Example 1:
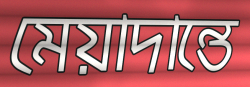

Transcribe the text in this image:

মেয়াদান্তে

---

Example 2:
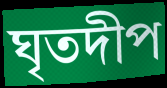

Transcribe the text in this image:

ঘৃতদীপ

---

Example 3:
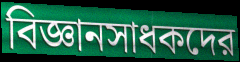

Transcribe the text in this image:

বিজ্ঞানসাধকদের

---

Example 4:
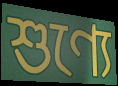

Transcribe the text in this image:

শুণ্যে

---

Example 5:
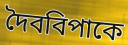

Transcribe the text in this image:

দৈববিপাকে